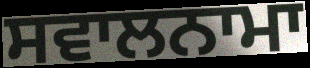
ਸਵਾਲਨਾਮਾ